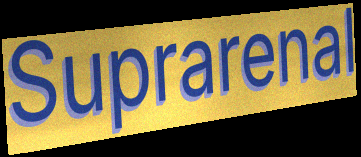
Suprarenal